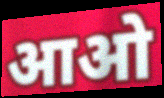
आओ